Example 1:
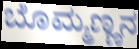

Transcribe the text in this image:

ಬೊಮ್ಮಣ್ಣನ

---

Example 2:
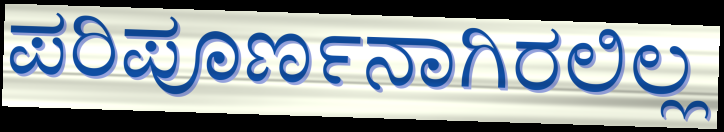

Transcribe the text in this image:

ಪರಿಪೂರ್ಣನಾಗಿರಲಿಲ್ಲ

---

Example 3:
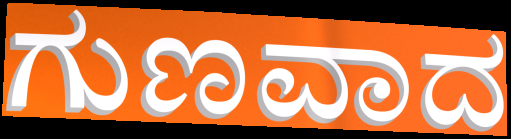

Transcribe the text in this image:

ಗುಣವಾದ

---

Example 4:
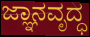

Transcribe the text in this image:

ಜ್ಞಾನವೃದ್ಧ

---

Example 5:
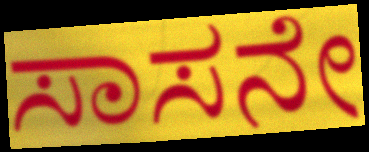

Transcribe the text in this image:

ಸಾಸನೇ